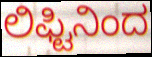
ಲಿಫ್ಟಿನಿಂದ